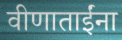
वीणाताईंना